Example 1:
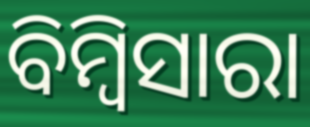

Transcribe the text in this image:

ବିମ୍ବିସାରା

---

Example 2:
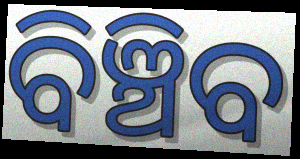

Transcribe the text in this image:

ବିଞ୍ଚିବ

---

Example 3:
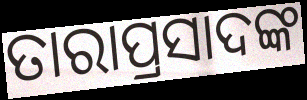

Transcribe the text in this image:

ତାରାପ୍ରସାଦଙ୍କ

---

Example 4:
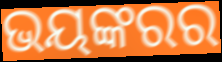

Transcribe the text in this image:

ଭୟଙ୍କରର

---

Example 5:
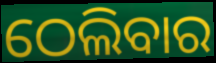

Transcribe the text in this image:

ଠେଲିବାର